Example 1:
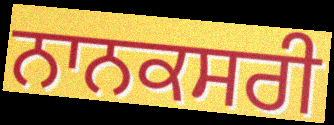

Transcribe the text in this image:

ਨਾਨਕਸਰੀ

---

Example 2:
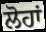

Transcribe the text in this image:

ਲੋਹਾਂ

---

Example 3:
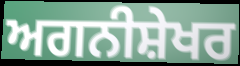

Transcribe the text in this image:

ਅਗਨੀਸ਼ੇਖਰ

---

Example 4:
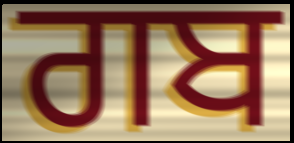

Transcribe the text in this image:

ਗਬ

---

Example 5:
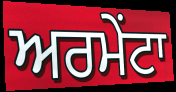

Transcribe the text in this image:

ਅਰਮੇਂਟਾ